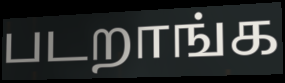
படறாங்க